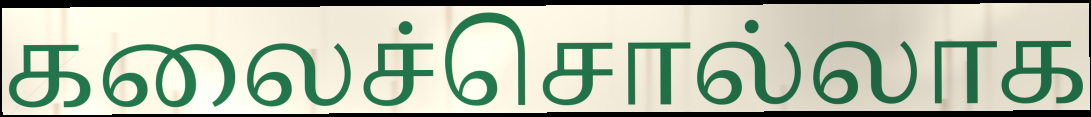
கலைச்சொல்லாக